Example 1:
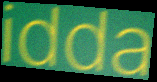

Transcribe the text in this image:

idda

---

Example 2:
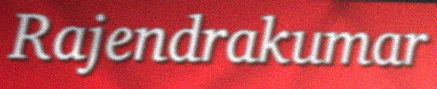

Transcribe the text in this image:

Rajendrakumar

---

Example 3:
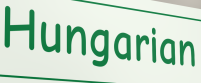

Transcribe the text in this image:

Hungarian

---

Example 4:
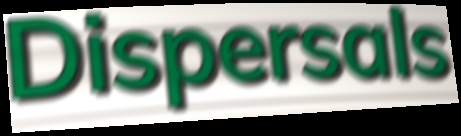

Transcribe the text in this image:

Dispersals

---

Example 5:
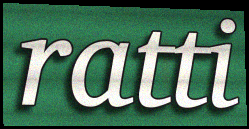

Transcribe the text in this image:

ratti